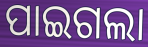
ପାଇଗଲା